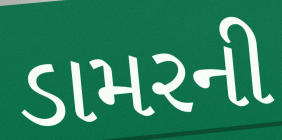
ડામરની